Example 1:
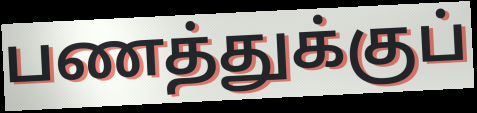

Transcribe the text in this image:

பணத்துக்குப்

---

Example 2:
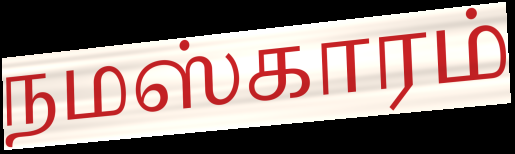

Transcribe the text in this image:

நமஸ்காரம்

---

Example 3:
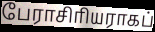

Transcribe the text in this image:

பேராசிரியராகப்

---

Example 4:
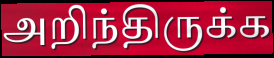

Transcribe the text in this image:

அறிந்திருக்க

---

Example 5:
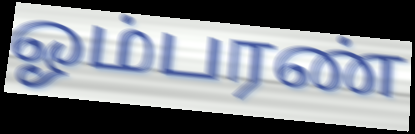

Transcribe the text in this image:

ஓம்பரண்